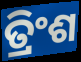
ତ୍ରିଂଶ